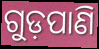
ଗୁଡ଼ପାଣି